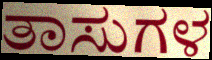
ತಾಸುಗಳ